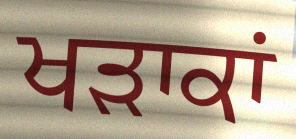
ਖੜਾਕਾਂ